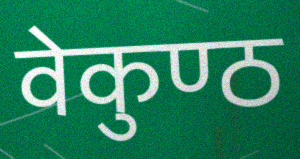
वेकुण्ठ